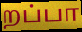
றப்பா